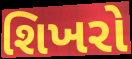
શિખરો